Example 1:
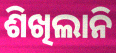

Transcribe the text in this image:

ଶିଖିଲାନି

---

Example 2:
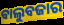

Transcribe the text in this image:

ବାଲୁବଜାର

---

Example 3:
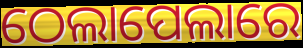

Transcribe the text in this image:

ଠେଲାପେଲାରେ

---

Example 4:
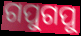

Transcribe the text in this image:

ଗପୁଗପୁ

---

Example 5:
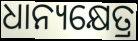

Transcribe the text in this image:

ଧାନ୍ୟକ୍ଷେତ୍ର